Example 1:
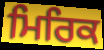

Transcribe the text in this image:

ਮਿਰਿਕ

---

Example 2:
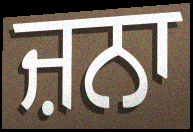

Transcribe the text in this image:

ਜ਼ਨਾ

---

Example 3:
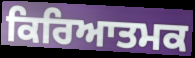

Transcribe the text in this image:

ਕਿਰਿਆਤਮਕ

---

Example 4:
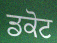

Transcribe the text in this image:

ਡਕੋਟ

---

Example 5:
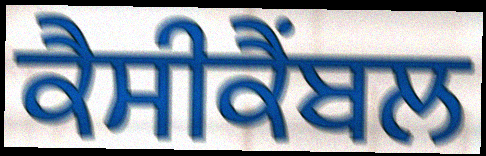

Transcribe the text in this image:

ਕੈਸੀਕੈਂਬਲ